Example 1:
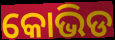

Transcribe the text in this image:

କୋଭିଡ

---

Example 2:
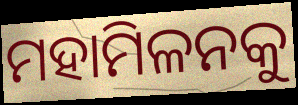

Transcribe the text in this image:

ମହାମିଳନକୁ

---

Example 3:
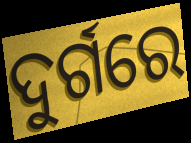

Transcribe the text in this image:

ଦୁର୍ଗରେ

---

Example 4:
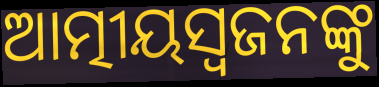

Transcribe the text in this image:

ଆତ୍ମୀୟସ୍ୱଜନଙ୍କୁ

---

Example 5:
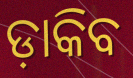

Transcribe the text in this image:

ଡ଼ାକିବ